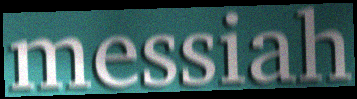
messiah